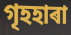
গৃহহাৰা